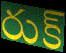
రుక్